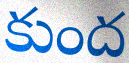
కుంద